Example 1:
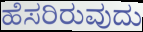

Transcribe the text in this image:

ಹೆಸರಿರುವುದು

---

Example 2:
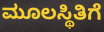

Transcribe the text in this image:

ಮೂಲಸ್ಥಿತಿಗೆ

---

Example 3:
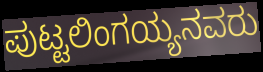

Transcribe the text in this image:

ಪುಟ್ಟಲಿಂಗಯ್ಯನವರು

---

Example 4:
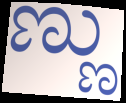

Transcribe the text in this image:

ಣ್ಣು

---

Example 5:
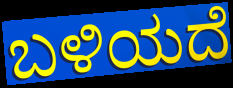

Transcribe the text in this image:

ಬಳಿಯದೆ